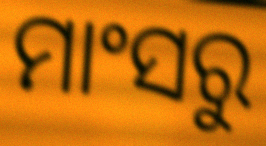
ମାଂସରୁ